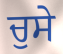
ਚੁਸੇ